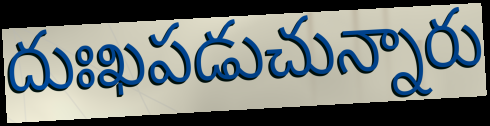
దుఃఖపడుచున్నారు